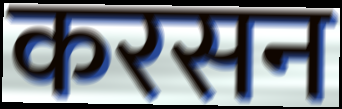
करसन